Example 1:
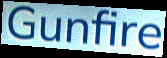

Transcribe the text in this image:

Gunfire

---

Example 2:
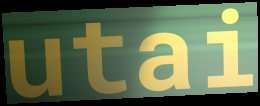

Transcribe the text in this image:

utai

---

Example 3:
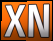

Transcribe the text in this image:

XN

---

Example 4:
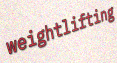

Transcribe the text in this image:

weightlifting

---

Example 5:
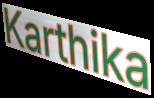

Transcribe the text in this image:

Karthika